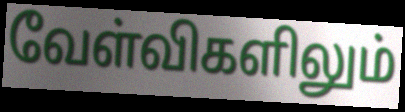
வேள்விகளிலும்